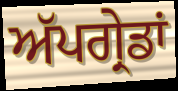
ਅੱਪਗ੍ਰੇਡਾਂ